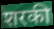
शरकी